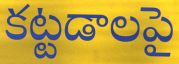
కట్టడాలపై